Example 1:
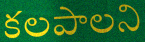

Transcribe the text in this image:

కలపాలని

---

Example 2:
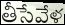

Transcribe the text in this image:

తీసేవేళ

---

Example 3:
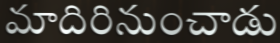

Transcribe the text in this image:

మాదిరినుంచాడు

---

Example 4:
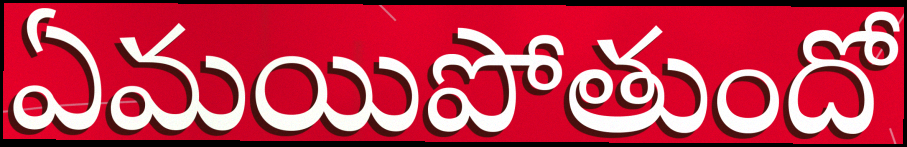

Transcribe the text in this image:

ఏమయిపోతుందో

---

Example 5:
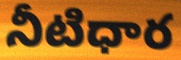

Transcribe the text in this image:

నీటిధార